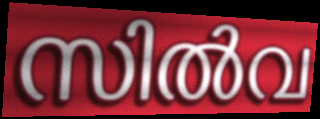
സിൽവ